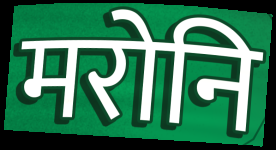
मरोनि